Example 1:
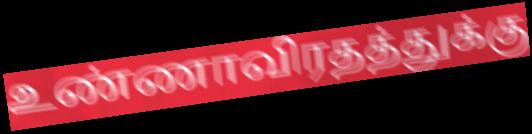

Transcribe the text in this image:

உண்ணாவிரதத்துக்கு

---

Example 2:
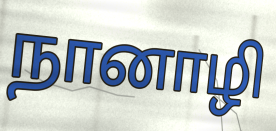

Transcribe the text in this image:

நானாழி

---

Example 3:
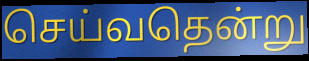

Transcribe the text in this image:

செய்வதென்று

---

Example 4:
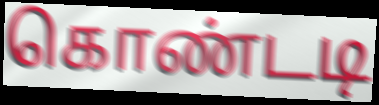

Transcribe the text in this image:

கொண்டடி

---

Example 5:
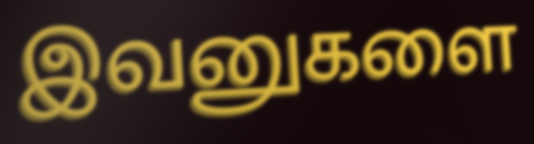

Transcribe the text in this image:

இவனுகளை